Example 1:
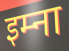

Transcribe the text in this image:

इम्ना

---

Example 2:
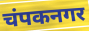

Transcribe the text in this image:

चंपकनगर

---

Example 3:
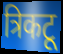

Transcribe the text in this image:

त्रिकटू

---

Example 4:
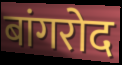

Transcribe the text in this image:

बांगरोद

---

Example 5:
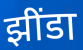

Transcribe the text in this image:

झींडा